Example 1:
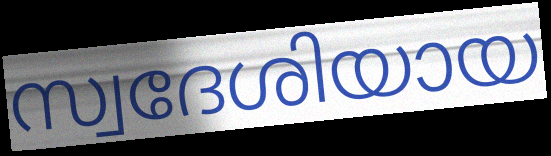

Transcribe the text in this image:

സ്വദേശിയായ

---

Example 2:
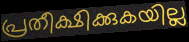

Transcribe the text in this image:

പ്രതീക്ഷിക്കുകയില്ല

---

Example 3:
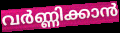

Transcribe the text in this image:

വർണ്ണിക്കാൻ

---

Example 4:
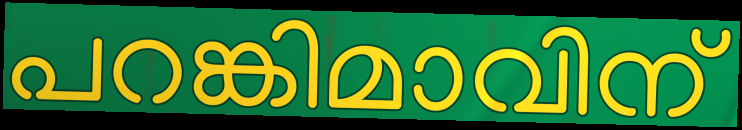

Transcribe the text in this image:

പറങ്കിമാവിന്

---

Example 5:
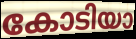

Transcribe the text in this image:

കോടിയാ